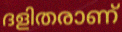
ദളിതരാണ്